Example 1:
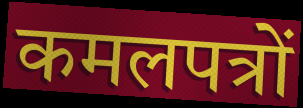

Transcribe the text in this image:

कमलपत्रों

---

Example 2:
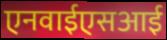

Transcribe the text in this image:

एनवाईएसआई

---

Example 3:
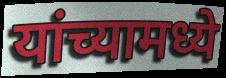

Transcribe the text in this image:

यांच्यामध्ये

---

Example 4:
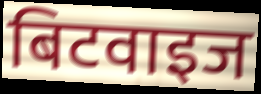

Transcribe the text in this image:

बिटवाइज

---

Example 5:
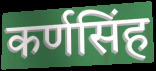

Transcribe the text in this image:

कर्णसिंह